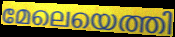
മേലെയെത്തി